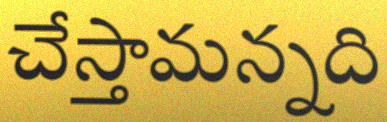
చేస్తామన్నది